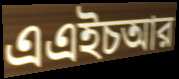
এএইচআর